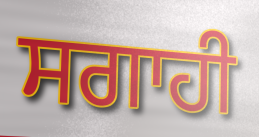
ਸਗਾਹੀ